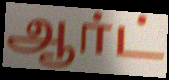
ஆர்ட்